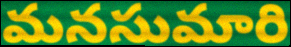
మనసుమారి